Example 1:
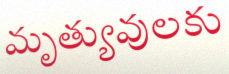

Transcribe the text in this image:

మృత్యువులకు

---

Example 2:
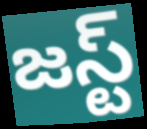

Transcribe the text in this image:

జస్ట్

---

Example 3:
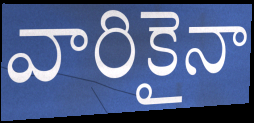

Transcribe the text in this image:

వారికైనా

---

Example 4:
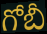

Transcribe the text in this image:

గోబీ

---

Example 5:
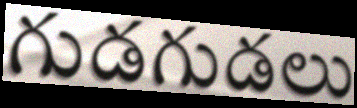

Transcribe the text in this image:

గుడగుడలు